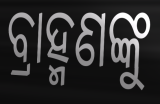
ବ୍ରାହ୍ମଣଙ୍କୁ